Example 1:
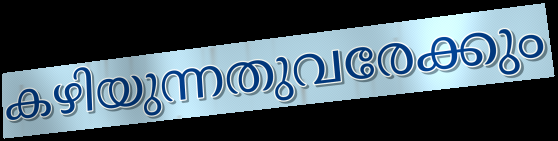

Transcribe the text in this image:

കഴിയുന്നതുവരേക്കും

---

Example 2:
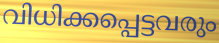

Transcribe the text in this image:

വിധിക്കപ്പെട്ടവരും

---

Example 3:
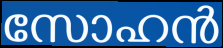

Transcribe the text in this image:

സോഹൻ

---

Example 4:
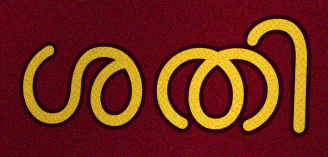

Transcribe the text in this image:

ശതി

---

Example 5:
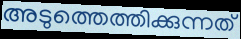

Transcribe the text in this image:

അടുത്തെത്തിക്കുന്നത്